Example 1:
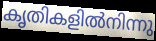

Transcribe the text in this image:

കൃതികളിൽനിന്നു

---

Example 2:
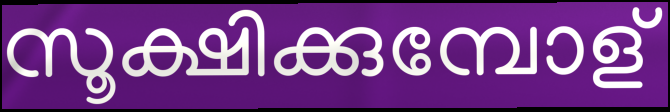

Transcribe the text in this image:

സൂക്ഷിക്കുമ്പോള്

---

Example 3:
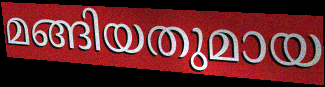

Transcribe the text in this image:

മങ്ങിയതുമായ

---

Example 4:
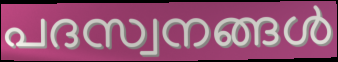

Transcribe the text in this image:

പദസ്വനങ്ങൾ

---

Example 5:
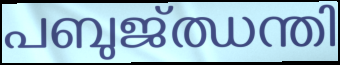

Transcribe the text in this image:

പബുജ്ഝന്തി